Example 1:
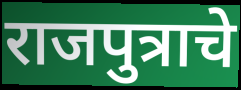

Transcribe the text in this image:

राजपुत्राचे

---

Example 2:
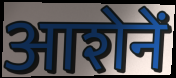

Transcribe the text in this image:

आशेनें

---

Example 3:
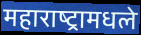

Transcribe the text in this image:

महाराष्ट्रामधले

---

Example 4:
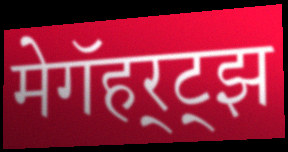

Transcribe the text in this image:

मेगॅहर्ट्‌झ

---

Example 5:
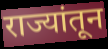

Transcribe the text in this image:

राज्यांतून